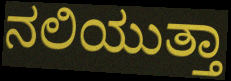
ನಲಿಯುತ್ತಾ